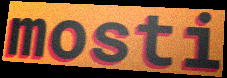
mosti